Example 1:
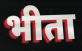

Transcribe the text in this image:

भीता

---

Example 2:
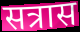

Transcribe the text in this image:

सत्रास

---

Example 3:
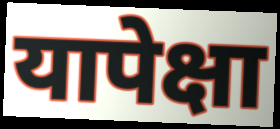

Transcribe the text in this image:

यापेक्षा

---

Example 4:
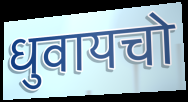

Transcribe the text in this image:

धुवायचो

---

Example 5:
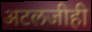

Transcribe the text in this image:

अटलजीही